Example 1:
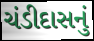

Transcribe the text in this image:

ચંડીદાસનું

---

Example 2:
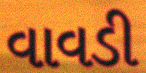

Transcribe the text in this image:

વાવડી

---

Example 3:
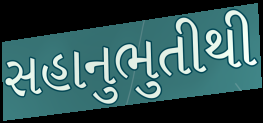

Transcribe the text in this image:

સહાનુભુતીથી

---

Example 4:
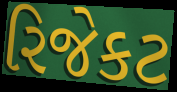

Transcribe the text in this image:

રિજેકટ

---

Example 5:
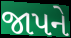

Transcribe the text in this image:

જાપને